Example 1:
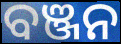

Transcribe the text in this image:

ବଞ୍ଜନ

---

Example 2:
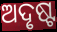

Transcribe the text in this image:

ଅଦୃଷ୍ଟ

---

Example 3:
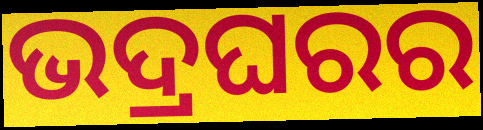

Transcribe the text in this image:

ଭଦ୍ରଘରର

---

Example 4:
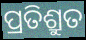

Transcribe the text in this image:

ପ୍ରତିଶ୍ରୁତ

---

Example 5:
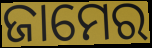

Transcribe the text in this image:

ଜାମେର